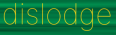
dislodge